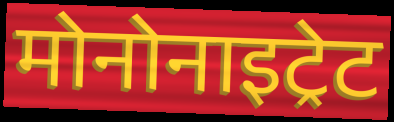
मोनोनाइट्रेट